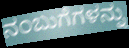
ನಂಬುಗೆಗಳನ್ನು